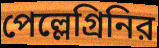
পেল্লেগ্রিনির